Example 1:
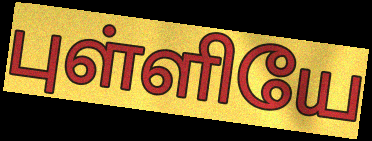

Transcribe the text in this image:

புள்ளியே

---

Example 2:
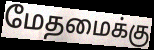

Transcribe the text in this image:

மேதமைக்கு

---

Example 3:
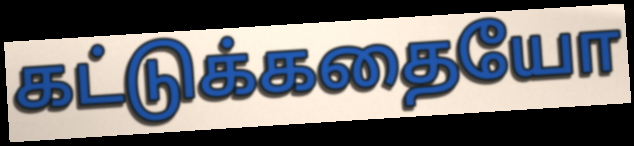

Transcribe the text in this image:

கட்டுக்கதையோ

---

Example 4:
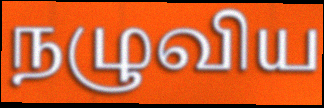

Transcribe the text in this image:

நழுவிய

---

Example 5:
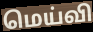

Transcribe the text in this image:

மெய்வி